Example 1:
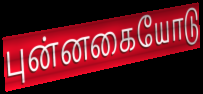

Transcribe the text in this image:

புன்னகையோடு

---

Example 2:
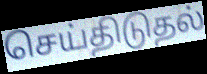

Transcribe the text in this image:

செய்திடுதல்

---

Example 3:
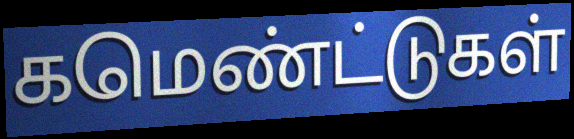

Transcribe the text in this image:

கமெண்ட்டுகள்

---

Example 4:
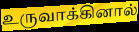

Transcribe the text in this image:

உருவாக்கினால்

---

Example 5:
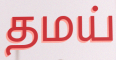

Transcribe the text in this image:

தமய்